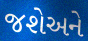
જશેઅને